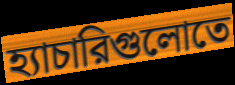
হ্যাচারিগুলোতে